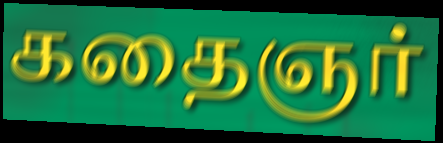
கதைஞர்